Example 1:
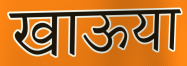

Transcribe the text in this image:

खाऊया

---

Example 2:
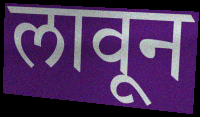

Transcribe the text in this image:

लावून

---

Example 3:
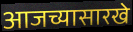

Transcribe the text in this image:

आजच्यासारखे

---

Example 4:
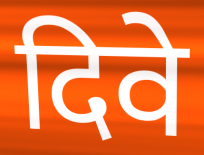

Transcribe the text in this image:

दिवे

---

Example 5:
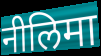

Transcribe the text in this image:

नीलिमा